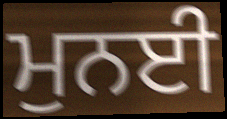
ਮੁਨਈ